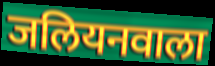
जलियनवाला